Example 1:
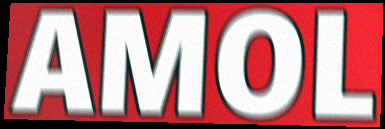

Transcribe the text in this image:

AMOL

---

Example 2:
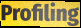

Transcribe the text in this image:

Profiling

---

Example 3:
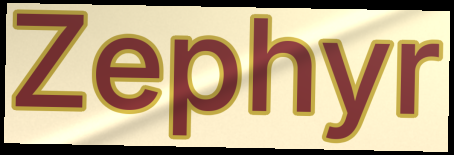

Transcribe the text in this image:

Zephyr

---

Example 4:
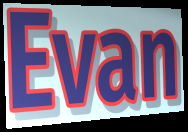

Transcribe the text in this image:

Evan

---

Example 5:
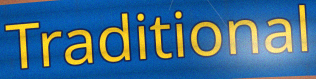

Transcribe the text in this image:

Traditional